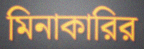
মিনাকারির